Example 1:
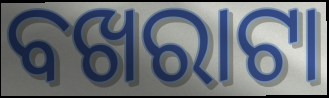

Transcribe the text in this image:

ବଖରାଟା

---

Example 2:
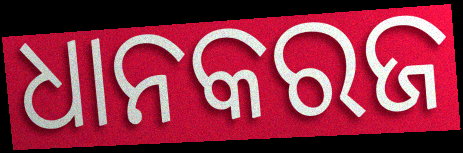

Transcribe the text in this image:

ଧାନକରଜ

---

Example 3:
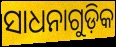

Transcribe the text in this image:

ସାଧନାଗୁଡ଼ିକ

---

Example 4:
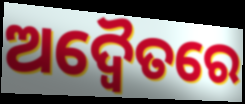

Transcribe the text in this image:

ଅଦ୍ୱୈତରେ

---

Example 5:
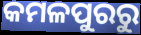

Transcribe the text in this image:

କମଳପୁରରୁ